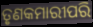
ତୃଣକମାରୀପରି